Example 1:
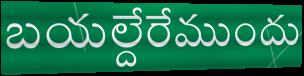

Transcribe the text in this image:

బయల్దేరేముందు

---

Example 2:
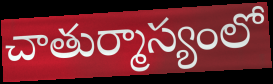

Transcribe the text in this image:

చాతుర్మాస్యంలో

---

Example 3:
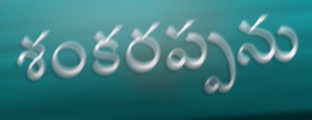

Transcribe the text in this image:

శంకరప్పను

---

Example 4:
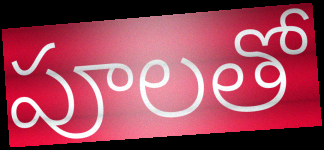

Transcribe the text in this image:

పూలతో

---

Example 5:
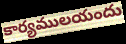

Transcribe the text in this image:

కార్యములయందు